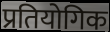
प्रतियोगिक